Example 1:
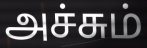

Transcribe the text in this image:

அச்சும்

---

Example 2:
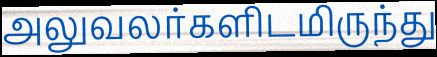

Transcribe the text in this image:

அலுவலர்களிடமிருந்து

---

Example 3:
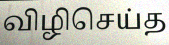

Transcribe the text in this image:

விழிசெய்த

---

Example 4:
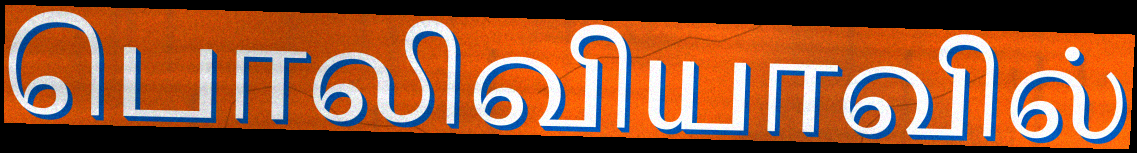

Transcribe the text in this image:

பொலிவியாவில்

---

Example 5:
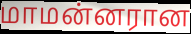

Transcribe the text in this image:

மாமன்னரான